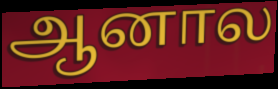
ஆனால